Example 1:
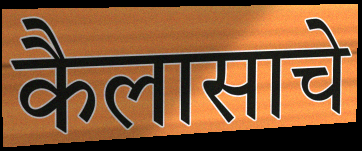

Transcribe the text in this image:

कैलासाचे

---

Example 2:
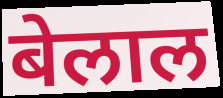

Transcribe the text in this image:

बेलाल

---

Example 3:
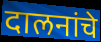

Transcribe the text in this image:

दालनांचे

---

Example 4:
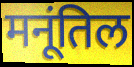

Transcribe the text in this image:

मनूंतिल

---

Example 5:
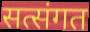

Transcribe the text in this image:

सत्संगत